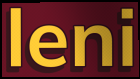
leni